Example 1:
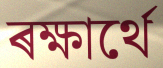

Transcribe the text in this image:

ৰক্ষাৰ্থে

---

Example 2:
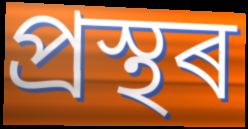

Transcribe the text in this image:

প্ৰস্থৰ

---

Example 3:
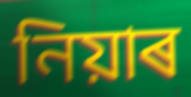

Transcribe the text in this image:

নিয়াৰ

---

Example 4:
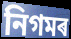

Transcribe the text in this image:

নিগমৰ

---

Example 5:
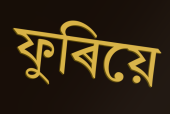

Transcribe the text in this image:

ফুৰিয়ে